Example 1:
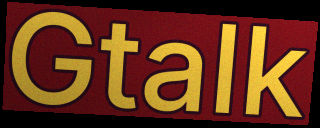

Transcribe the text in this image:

Gtalk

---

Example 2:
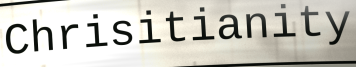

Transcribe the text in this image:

Chrisitianity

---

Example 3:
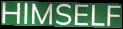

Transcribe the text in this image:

HIMSELF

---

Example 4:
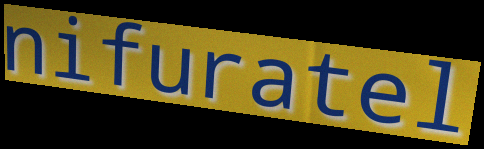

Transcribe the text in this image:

nifuratel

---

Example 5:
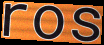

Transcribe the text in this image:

ros